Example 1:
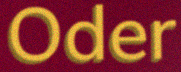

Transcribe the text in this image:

Oder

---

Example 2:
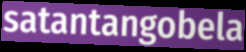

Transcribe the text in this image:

satantangobela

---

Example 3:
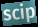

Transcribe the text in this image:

scip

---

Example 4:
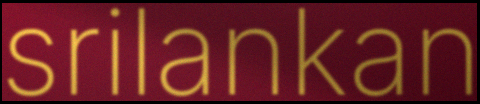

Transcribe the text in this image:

srilankan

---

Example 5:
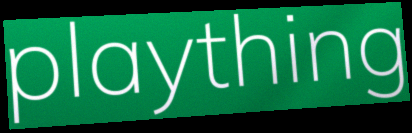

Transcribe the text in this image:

plaything